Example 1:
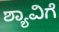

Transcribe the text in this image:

ಶ್ಯಾವಿಗೆ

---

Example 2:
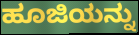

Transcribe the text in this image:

ಹೂಜಿಯನ್ನು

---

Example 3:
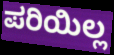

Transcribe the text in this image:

ಪರಿಯಿಲ್ಲ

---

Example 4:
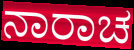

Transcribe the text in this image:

ನಾರಾಚ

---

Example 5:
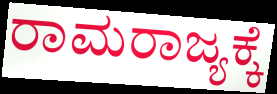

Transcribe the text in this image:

ರಾಮರಾಜ್ಯಕ್ಕೆ